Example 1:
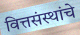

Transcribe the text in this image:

वित्तसंस्थांचे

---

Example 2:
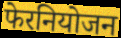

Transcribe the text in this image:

फेरनियोजन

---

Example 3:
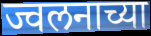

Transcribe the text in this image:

ज्वलनाच्या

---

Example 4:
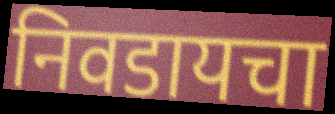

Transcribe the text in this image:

निवडायचा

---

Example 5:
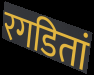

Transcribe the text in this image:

रगडितां